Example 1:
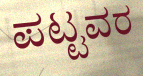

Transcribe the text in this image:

ಪಟ್ಟವರ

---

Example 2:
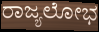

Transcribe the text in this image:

ರಾಜ್ಯಲೋಭ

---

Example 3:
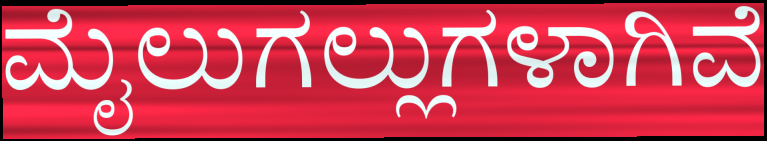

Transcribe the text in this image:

ಮೈಲುಗಲ್ಲುಗಳಾಗಿವೆ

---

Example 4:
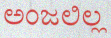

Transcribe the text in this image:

ಅಂಜಲಿಲ್ಲ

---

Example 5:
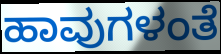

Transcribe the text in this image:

ಹಾವುಗಳಂತೆ